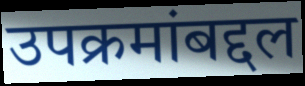
उपक्रमांबद्दल